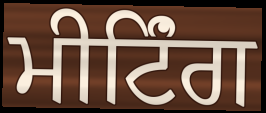
ਮੀਟਿਂੰਗ